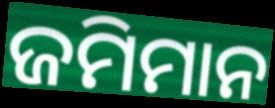
ଜମିମାନ